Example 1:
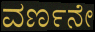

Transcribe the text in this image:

ವರ್ಣನೇ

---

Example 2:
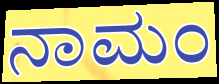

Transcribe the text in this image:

ನಾಮಂ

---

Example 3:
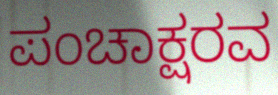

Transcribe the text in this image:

ಪಂಚಾಕ್ಷರವ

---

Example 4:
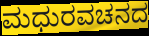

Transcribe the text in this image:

ಮಧುರವಚನದ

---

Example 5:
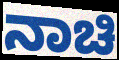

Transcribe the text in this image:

ನಾಚಿ